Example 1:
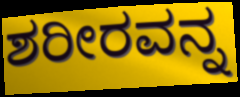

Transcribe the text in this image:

ಶರೀರವನ್ನ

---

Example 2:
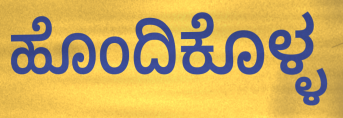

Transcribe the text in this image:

ಹೊಂದಿಕೊಳ್ಳ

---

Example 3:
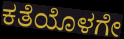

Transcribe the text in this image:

ಕತೆಯೊಳಗೇ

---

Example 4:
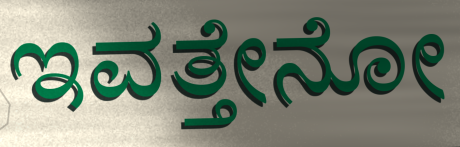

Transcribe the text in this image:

ಇವತ್ತೇನೋ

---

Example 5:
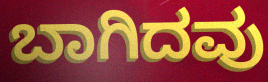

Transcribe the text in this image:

ಬಾಗಿದವು